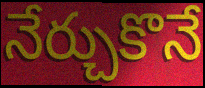
నేర్చుకొనే